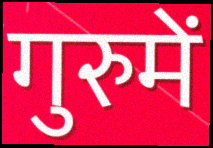
गुरुमें